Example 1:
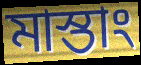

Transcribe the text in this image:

মাস্তাং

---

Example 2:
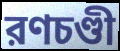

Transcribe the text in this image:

রণচণ্ডী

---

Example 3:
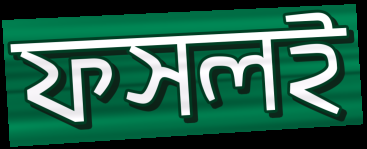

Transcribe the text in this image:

ফসলই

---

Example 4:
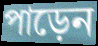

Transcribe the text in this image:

পাড়েন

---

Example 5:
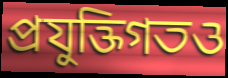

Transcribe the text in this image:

প্রযুক্তিগতও